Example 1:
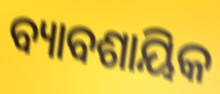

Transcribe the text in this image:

ବ୍ୟାବଶାୟିକ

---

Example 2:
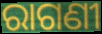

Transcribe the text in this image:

ରାଗଣୀ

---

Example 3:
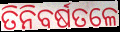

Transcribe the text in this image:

ତିନିବର୍ଷତଳେ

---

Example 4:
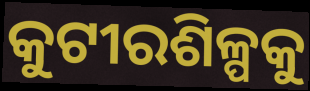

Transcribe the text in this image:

କୁଟୀରଶିଳ୍ପକୁ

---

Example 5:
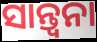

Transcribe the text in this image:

ସାନ୍ତ୍ୱନା